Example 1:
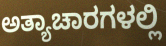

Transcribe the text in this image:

ಅತ್ಯಾಚಾರಗಳಲ್ಲಿ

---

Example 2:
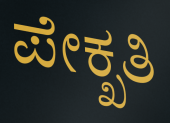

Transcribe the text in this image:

ಪೇಕ್ಖತಿ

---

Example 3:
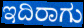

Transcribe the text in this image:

ಇದಿರಾಗು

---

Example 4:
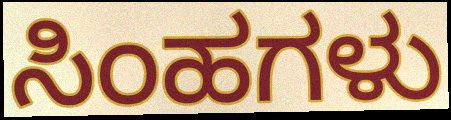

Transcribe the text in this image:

ಸಿಂಹಗಳು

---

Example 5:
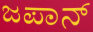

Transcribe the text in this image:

ಜಪಾನ್